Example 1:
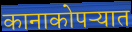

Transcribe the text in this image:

कानाकोपऱ्यात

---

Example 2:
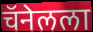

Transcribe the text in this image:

चॅनेलला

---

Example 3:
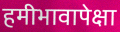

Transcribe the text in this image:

हमीभावापेक्षा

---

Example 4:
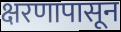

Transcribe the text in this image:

क्षरणापासून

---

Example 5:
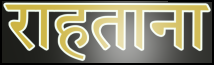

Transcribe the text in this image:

राहताना